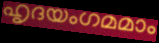
ഹൃദയംഗമമാം